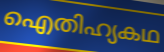
ഐതിഹ്യകഥ